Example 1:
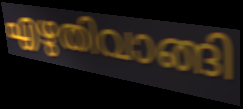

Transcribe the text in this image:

എഴുതിവാങ്ങി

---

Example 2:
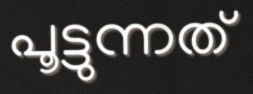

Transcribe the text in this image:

പൂട്ടുന്നത്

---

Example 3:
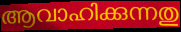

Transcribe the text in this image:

ആവാഹിക്കുന്നതു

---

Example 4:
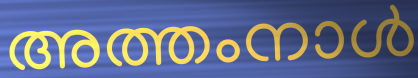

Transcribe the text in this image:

അത്തംനാൾ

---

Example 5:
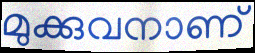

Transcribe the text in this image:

മുക്കുവനാണ്